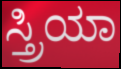
ಸ್ತ್ರಿಯಾ